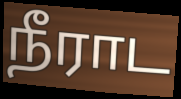
நீராட